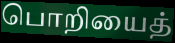
பொறியைத்